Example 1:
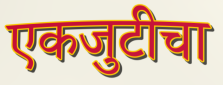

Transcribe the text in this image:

एकजुटीचा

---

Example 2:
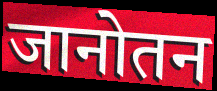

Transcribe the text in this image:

जानोतन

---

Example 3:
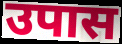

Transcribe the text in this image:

उपास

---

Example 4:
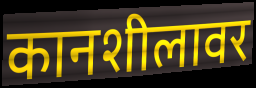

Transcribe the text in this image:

कानशीलावर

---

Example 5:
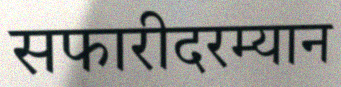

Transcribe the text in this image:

सफारीदरम्यान